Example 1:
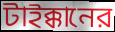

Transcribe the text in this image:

টাইক্কানের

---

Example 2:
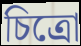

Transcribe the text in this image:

চিত্রো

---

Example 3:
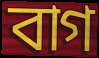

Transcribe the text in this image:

বাগ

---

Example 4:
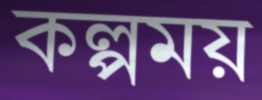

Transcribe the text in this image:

কল্পময়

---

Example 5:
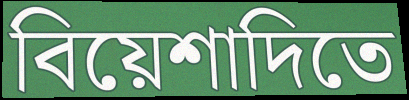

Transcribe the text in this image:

বিয়েশাদিতে